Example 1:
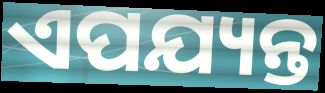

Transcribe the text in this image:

ଏପଯ୍ୟନ୍ତ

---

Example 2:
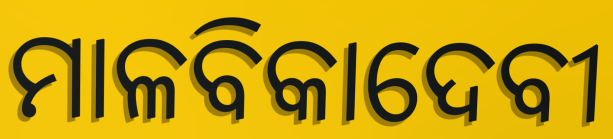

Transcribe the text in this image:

ମାଳବିକାଦେବୀ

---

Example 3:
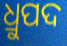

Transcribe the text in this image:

ଧ୍ରୁପଦ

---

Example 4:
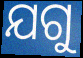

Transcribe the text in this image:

ଯଗୁ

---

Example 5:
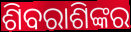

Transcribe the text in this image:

ଶିବରାଶିଙ୍କର